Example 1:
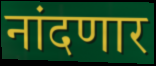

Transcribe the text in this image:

नांदणार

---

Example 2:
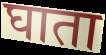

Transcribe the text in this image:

घाता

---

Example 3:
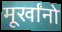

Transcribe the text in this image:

मूर्खांनो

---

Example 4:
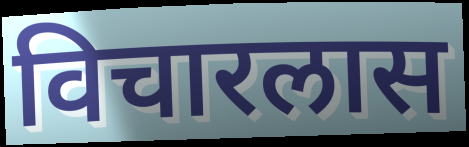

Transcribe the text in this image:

विचारलास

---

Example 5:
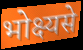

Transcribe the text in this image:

भोक्ष्यसे